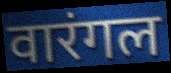
वारंगल